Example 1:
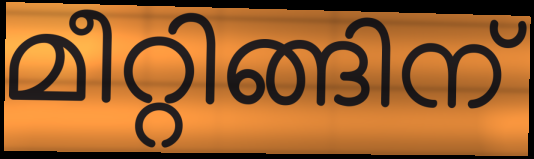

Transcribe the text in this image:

മീറ്റിങ്ങിന്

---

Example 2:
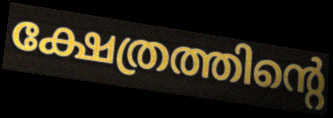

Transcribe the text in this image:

ക്ഷേത്രത്തിന്റെ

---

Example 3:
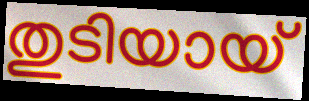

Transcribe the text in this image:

തുടിയായ്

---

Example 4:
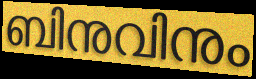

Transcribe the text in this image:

ബിനുവിനും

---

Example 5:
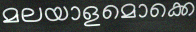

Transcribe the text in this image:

മലയാളമൊക്കെ